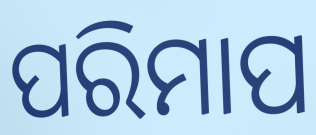
ପରିମାପ